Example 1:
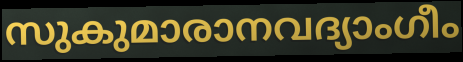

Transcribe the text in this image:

സുകുമാരാനവദ്യാംഗീം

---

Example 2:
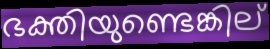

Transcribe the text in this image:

ഭക്തിയുണ്ടെങ്കില്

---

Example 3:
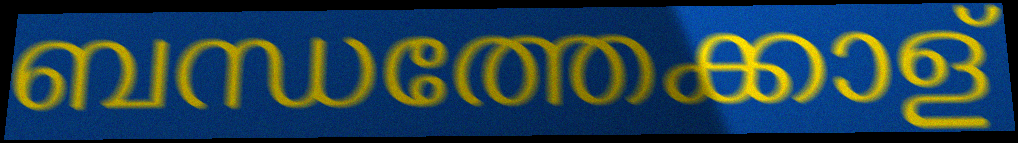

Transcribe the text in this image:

ബന്ധത്തേക്കാള്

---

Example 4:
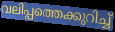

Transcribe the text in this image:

വലിപ്പത്തെക്കുറിച്ച്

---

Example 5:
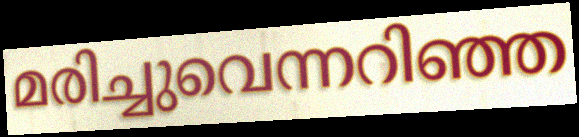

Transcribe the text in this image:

മരിച്ചുവെന്നറിഞ്ഞ